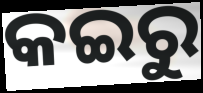
କଇରୁ